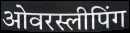
ओवरस्लीपिंग